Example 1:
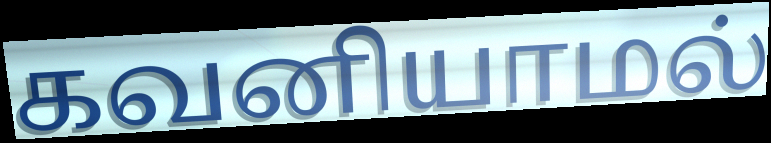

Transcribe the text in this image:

கவனியாமல்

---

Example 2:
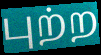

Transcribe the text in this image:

புற்ற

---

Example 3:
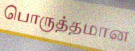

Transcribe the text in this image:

பொருத்தமான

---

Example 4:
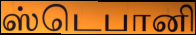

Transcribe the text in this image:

ஸ்டெபானி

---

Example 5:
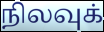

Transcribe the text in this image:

நிலவுக்